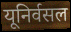
यूनिर्वसल